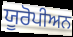
ਯੂਰੋਪੀਅਨ